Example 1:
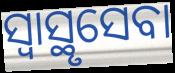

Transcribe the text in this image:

ସ୍ୱାସ୍ଥୃସେବା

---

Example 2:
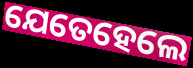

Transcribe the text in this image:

ଯେତେହେଲେ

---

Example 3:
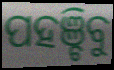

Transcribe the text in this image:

ପହଞ୍ଚିବୁ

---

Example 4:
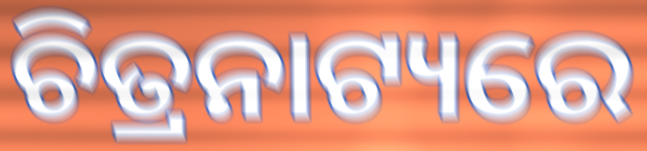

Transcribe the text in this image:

ଚିତ୍ରନାଟ୍ୟରେ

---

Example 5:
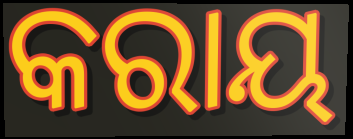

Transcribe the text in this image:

କରାୟ